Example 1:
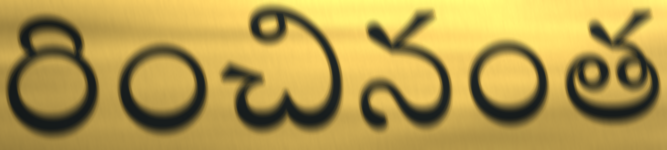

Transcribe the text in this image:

రించినంత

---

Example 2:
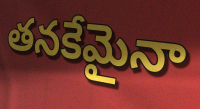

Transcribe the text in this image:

తనకేమైనా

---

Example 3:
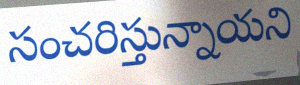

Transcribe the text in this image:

సంచరిస్తున్నాయని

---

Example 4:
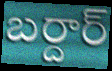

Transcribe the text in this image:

బర్దార్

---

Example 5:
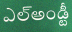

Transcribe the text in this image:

ఎల్అండ్టీ